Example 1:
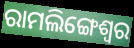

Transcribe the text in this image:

ରାମଲିଙ୍ଗେଶ୍ୱର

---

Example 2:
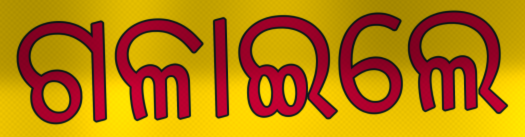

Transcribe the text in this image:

ଗଳାଇଲେ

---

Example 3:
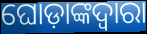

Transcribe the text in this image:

ଘୋଡ଼ାଙ୍କଦ୍ୱାରା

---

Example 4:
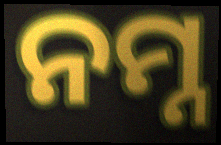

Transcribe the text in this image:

ନମ୍ନ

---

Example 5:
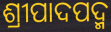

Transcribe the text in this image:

ଶ୍ରୀପାଦପଦ୍ମ